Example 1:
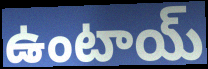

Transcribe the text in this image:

ఉంటాయ్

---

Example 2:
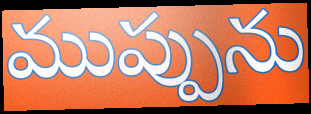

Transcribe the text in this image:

ముప్పును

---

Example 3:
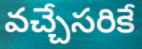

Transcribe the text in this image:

వచ్చేసరికే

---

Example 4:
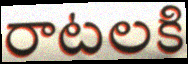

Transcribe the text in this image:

రాటలకి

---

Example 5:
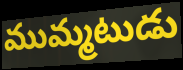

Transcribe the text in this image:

ముమ్మటుడు